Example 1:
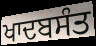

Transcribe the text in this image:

ਖਾਦਬਸੰਤ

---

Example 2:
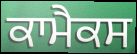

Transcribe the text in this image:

ਕਾਮੈਕਸ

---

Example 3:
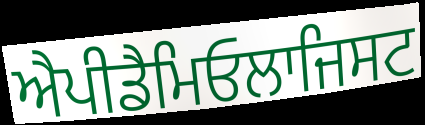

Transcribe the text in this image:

ਐਪੀਡੈਮਿਓਲਾਜਿਸਟ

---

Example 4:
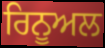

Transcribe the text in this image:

ਰਿਨੂਅਲ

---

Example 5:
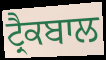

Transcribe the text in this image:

ਟ੍ਰੈਕਬਾਲ